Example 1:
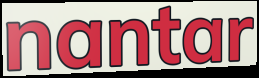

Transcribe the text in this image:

nantar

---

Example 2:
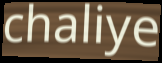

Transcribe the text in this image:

chaliye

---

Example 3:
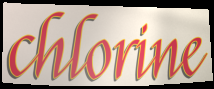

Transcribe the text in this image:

chlorine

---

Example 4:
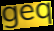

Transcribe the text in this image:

geq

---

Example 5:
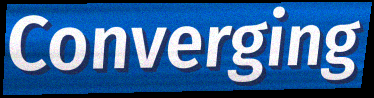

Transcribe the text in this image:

Converging